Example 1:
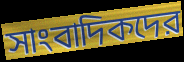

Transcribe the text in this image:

সাংবাদিকদের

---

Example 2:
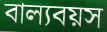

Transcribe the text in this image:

বাল্যবয়স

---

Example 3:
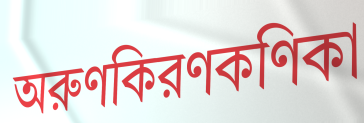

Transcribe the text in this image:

অরুণকিরণকণিকা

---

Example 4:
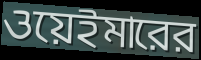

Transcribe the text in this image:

ওয়েইমারের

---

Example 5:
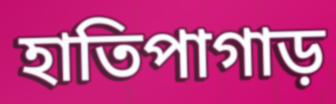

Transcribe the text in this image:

হাতিপাগাড়